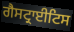
ਗੈਸਟ੍ਰਾਈਟਿਸ